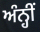
ਅੰਨ੍ਹੀਂ